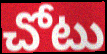
చోటు